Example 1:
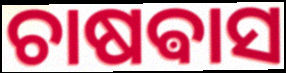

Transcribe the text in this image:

ଚାଷଵାସ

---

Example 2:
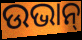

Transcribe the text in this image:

ଉଭାନ୍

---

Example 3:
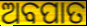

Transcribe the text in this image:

ଅବପାତ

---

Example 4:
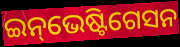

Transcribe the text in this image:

ଇନ୍‌ଭେଷ୍ଟିଗେସନ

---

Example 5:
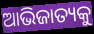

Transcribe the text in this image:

ଆଭିଜାତ୍ୟକୁ